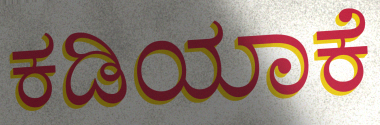
ಕಡಿಯಾಕೆ